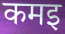
कमइ